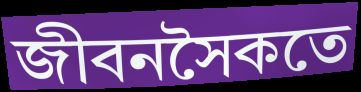
জীবনসৈকতে